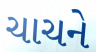
ચાચને